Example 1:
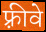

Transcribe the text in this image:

फ़्रीवे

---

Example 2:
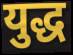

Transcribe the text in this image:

युद्ध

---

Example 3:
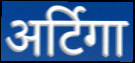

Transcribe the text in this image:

अर्टिगा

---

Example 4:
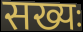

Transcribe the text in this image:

सख्यः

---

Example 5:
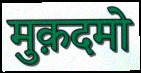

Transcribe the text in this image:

मुक़दमो